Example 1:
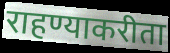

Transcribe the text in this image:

राहण्याकरीता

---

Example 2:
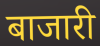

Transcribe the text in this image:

बाजारी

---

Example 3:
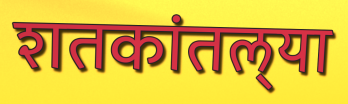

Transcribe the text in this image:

शतकांतल्या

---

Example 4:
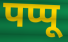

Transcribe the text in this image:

पप्पू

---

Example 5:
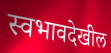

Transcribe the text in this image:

स्वभावदेखील